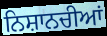
ਨਿਸ਼ਾਨਚੀਆਂ